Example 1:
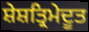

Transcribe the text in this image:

ਸ਼ੇਸ਼ਤ੍ਰਿਮੇਦੂਤ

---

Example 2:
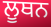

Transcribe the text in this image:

ਲੂਥਨ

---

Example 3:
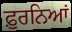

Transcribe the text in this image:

ਫ਼ੁਰਨਿਆਂ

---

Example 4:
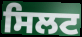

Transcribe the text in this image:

ਸਿਲਟ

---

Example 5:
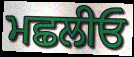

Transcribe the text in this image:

ਮਛਲੀਓ